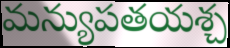
మన్యుపతయశ్చ